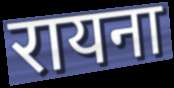
रायना